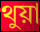
থুয়া